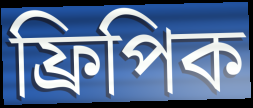
ফ্রিপিক